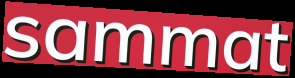
sammat